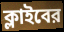
ক্লাইবের